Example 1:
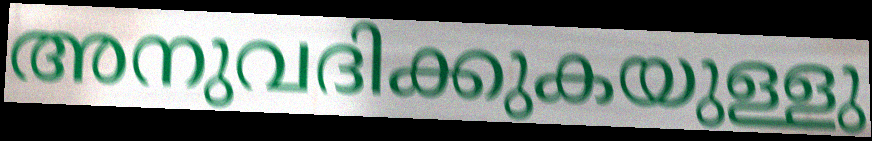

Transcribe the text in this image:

അനുവദിക്കുകയുള്ളു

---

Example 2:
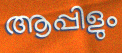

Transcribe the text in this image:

ആപ്പിളും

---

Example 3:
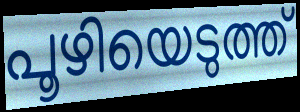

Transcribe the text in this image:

പൂഴിയെടുത്ത്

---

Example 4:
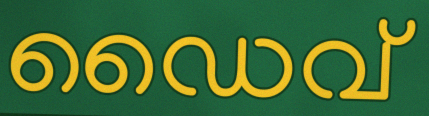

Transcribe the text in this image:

ഡൈവ്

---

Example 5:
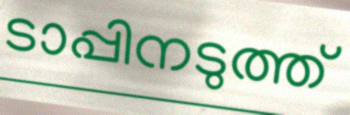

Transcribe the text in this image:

ടാപ്പിനടുത്ത്